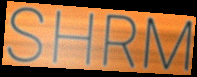
SHRM